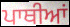
ਪਾਥੀਆਂ